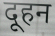
दूहन